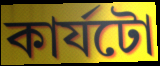
কাৰ্যটো